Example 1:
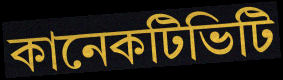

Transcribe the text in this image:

কানেকটিভিটি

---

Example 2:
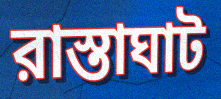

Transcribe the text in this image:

রাস্তাঘাট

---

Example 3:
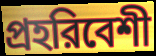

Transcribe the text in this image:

প্রহরিবেশী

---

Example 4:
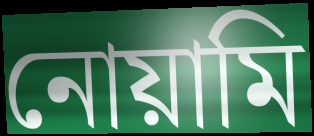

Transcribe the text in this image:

নোয়ামি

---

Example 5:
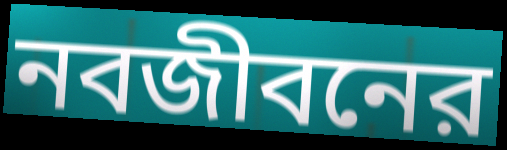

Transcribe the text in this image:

নবজীবনের